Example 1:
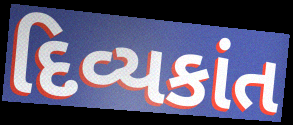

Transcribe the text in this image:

દિવ્યકાંત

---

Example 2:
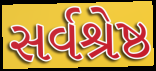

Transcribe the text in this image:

સર્વશ્રેષ્ઠ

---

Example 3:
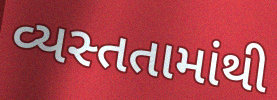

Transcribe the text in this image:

વ્યસ્તતામાંથી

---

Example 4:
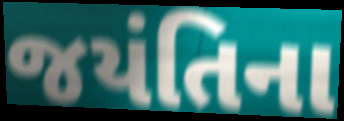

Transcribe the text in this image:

જયંતિના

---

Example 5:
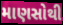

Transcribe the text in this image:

માણસોથી